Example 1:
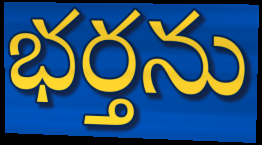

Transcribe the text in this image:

భర్తను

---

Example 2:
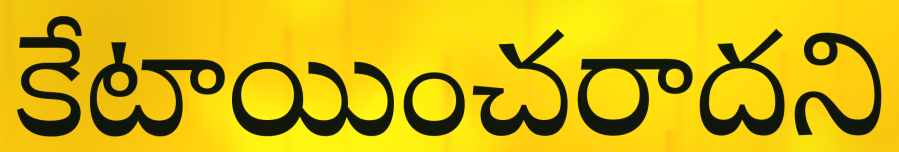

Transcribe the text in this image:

కేటాయించరాదని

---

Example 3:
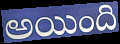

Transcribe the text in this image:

అయింది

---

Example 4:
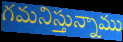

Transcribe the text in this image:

గమనిస్తున్నాము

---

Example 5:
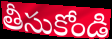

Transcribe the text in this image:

తీసుకోండి